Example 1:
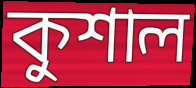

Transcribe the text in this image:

কুশাল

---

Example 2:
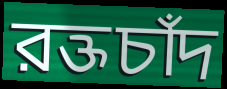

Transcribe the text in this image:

রক্তচাঁদ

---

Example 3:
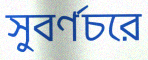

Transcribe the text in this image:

সুবর্ণচরে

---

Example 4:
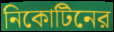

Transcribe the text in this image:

নিকোটিনের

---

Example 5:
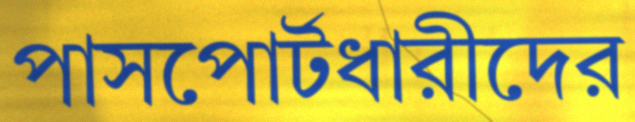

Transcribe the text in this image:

পাসপোর্টধারীদের